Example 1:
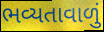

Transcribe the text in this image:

ભવ્યતાવાળું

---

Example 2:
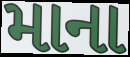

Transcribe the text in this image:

માના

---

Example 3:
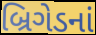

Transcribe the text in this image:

બ્રિગેડનાં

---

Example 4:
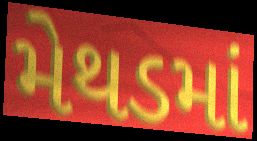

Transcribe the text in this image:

મેથડમાં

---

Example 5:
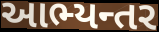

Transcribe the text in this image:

આભ્યન્તર